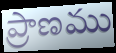
ప్రాణము